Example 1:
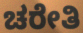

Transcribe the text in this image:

ಚರೇತಿ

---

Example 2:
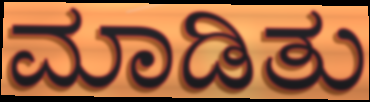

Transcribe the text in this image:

ಮಾಡಿತು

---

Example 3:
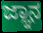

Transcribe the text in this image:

ಜ್ಞಾನ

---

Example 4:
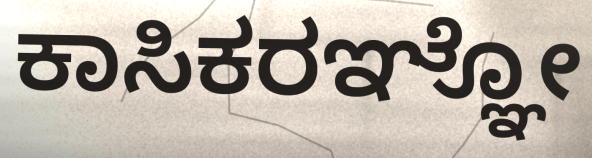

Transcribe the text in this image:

ಕಾಸಿಕರಞ್ಞೋ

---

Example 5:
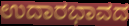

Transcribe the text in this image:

ಉದಾರಭಾವದ